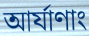
আর্যাণাং